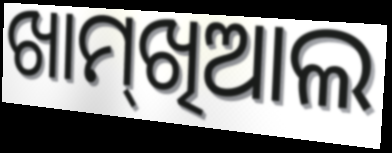
ଖାମ୍‌ଖିଆଲ